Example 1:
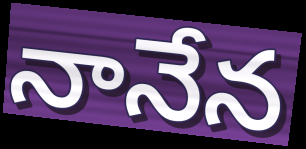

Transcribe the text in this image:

నానేన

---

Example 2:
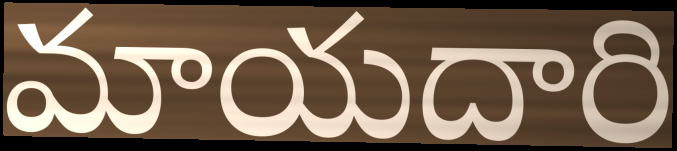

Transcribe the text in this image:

మాయదారి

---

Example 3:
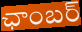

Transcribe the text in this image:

ఛాంబర్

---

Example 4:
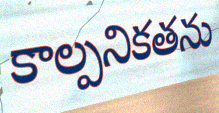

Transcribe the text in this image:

కాల్పనికతను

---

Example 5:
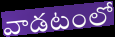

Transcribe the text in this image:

వాడటంలో